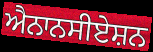
ਐਨਾਨਸੀਏਸ਼ਨ